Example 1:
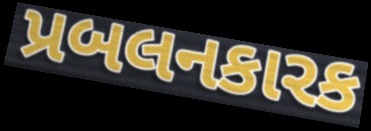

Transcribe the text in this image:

પ્રબલનકારક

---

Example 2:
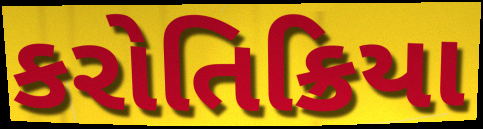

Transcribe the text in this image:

કરોતિક્રિયા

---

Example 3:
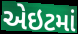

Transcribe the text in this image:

એઇટમાં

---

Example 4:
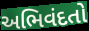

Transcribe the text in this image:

અભિવંદતો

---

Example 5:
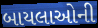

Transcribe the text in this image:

બાયલાઓની